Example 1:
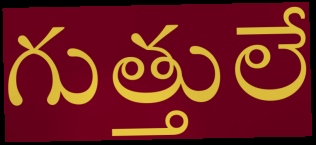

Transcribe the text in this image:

గుత్తులే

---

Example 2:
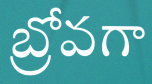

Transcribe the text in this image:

బ్రోవగా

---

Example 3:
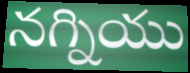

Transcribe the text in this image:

నగ్నియు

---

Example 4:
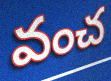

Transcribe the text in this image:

వంచ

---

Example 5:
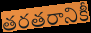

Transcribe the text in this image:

తరతరానికీ